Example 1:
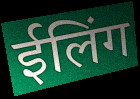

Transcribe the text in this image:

ईलिंग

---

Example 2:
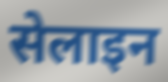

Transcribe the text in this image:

सेलाइन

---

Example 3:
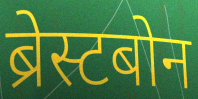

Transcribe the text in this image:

ब्रेस्टबोन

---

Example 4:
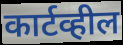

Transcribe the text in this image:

कार्टव्हील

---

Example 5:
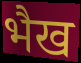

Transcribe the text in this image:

भैख